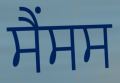
ਸੈਂਸਸ